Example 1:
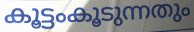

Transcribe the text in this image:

കൂട്ടംകൂടുന്നതും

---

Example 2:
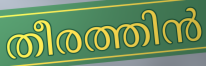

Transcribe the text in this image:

തീരത്തിൻ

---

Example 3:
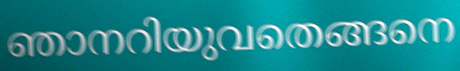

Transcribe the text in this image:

ഞാനറിയുവതെങ്ങനെ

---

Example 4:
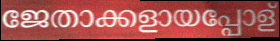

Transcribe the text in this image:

ജേതാക്കളായപ്പോള്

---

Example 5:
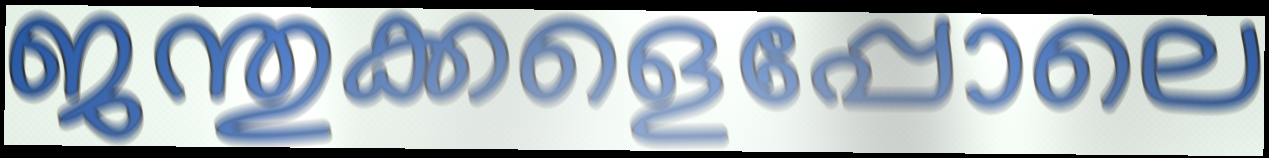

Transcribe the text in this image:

ജന്തുക്കളെപ്പോലെ